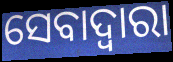
ସେବାଦ୍ବାରା